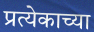
प्रत्येकाच्या